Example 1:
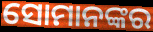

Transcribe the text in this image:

ସୋମାନଙ୍କର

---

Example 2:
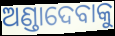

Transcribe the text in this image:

ଅଣ୍ଡାଦେବାକୁ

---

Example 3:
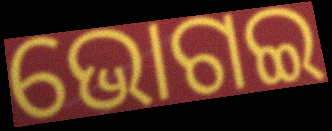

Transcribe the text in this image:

ଭୋଗଇ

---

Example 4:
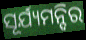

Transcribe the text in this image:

ସୂର୍ଯ୍ୟମନ୍ଦିର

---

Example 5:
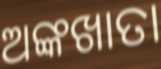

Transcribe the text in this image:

ଅଙ୍କଖାତା